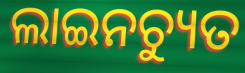
ଲାଇନଚ୍ୟୁତ